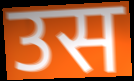
उस